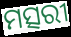
ମତ୍ସରୀ